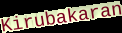
Kirubakaran